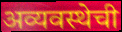
अव्यवस्थेची